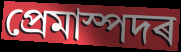
প্ৰেমাস্পদৰ